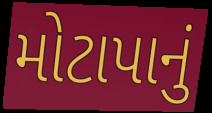
મોટાપાનું